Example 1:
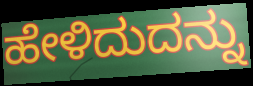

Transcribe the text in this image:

ಹೇಳಿದುದನ್ನು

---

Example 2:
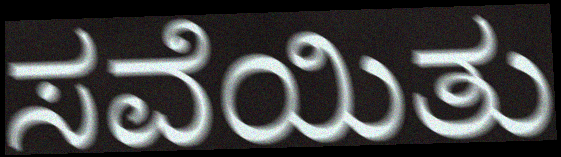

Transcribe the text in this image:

ಸವೆಯಿತು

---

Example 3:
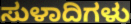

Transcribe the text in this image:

ಸುಳಾದಿಗಳು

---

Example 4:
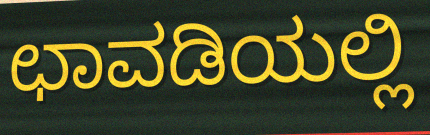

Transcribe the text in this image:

ಛಾವಡಿಯಲ್ಲಿ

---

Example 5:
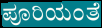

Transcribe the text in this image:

ಪೂರಿಯಂತೆ